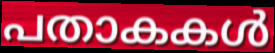
പതാകകൾ